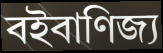
বইবাণিজ্য